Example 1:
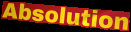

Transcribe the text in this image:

Absolution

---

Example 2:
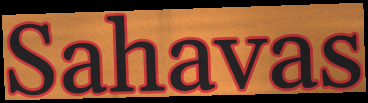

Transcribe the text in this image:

Sahavas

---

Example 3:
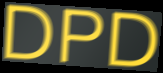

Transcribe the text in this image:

DPD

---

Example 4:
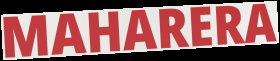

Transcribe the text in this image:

MAHARERA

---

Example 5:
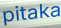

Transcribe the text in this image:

pitaka